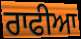
ਰਾਫੀਆ